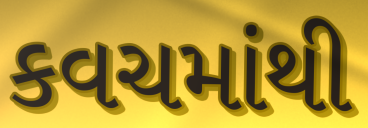
કવચમાંથી